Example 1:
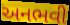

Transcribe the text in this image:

અનભવી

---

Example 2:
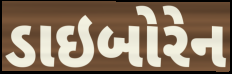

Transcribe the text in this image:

ડાઇબોરેન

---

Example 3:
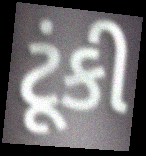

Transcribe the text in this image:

ટૂંકી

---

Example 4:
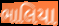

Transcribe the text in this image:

ભાલિયા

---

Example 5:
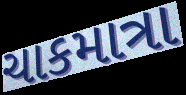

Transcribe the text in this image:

ચાકમાત્રા